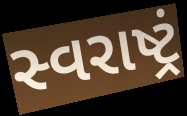
સ્વરાષ્ટ્રં